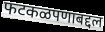
फटकळपणाबद्दल